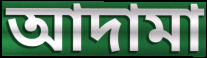
আদামা